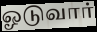
ஓடுவார்